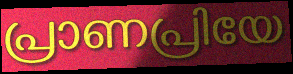
പ്രാണപ്രിയേ